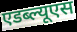
एडब्ल्यूएस